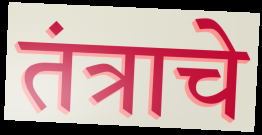
तंत्राचे